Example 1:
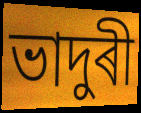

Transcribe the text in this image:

ভাদুৰী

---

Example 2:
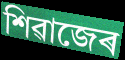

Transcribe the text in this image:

শিৱাজেৰ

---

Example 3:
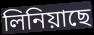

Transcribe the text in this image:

লিনিয়াছে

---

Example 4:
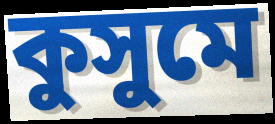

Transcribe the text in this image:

কুসুমে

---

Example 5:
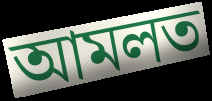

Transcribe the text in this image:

আমলত